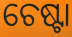
ଚେଷ୍ଟା